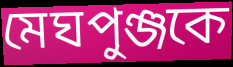
মেঘপুঞ্জকে